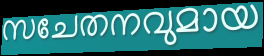
സചേതനവുമായ